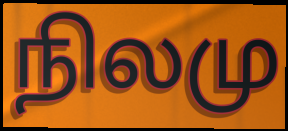
நிலமு